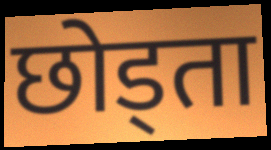
छोड्ता